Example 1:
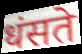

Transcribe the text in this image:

धंसते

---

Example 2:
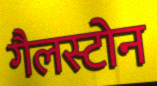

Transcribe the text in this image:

गैलस्टोन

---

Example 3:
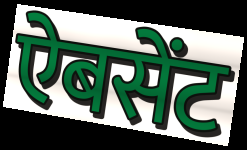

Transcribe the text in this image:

ऐबसेंट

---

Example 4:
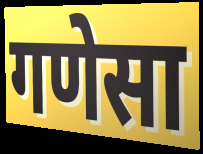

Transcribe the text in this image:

गणेसा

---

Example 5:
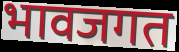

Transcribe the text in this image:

भावजगत